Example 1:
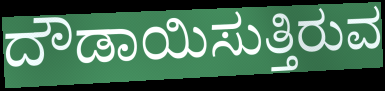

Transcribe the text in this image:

ದೌಡಾಯಿಸುತ್ತಿರುವ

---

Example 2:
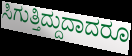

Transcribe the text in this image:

ಸಿಗುತ್ತಿದ್ದುದಾದರೂ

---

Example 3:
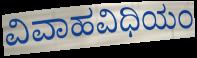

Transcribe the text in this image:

ವಿವಾಹವಿಧಿಯಂ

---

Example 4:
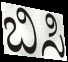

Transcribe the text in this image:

ಬಿಸಿ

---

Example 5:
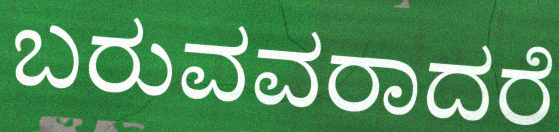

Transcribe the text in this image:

ಬರುವವರಾದರೆ